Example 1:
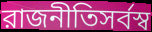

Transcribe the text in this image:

রাজনীতিসর্বস্ব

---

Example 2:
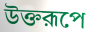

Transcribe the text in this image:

উক্তরূপে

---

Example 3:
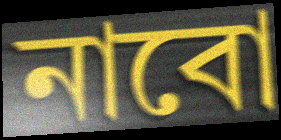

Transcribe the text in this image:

নাবো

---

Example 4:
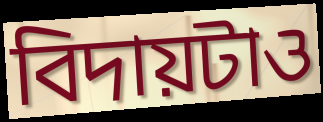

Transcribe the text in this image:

বিদায়টাও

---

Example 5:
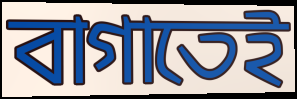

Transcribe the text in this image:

বাগাতেই